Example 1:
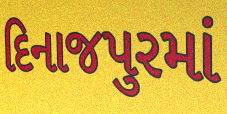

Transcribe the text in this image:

દિનાજપુરમાં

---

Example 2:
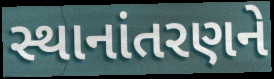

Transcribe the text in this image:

સ્થાનાંતરણને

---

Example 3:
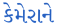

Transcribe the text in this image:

કેમેરાને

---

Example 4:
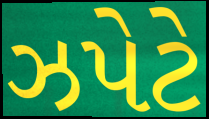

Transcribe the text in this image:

ઝપેટે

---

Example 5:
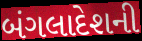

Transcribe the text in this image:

બંગલાદેશની